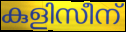
കുളിസീന്